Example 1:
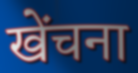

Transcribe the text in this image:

खेंचना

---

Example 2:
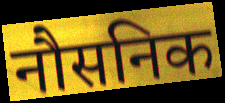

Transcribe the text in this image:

नौसनिक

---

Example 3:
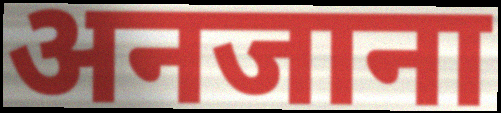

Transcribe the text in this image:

अनजाना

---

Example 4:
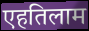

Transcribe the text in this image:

एहतिलाम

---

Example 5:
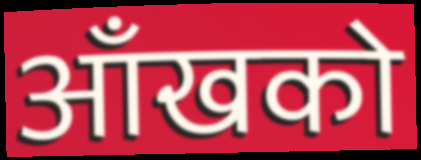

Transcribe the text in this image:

आँखको